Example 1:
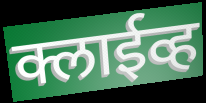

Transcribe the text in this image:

क्लाईव्ह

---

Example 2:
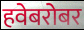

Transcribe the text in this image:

हवेबरोबर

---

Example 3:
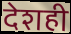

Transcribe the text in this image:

देशही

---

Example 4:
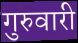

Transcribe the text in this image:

गुरुवारी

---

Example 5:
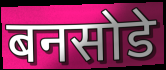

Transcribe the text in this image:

बनसोडे